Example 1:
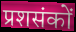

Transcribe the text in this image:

प्रशसंकों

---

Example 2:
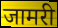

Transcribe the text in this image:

जामरी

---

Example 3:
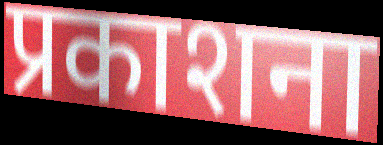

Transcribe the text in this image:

प्रकाशना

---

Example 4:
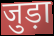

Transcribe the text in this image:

जुड़ा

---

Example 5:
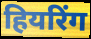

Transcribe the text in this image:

हियरिंग